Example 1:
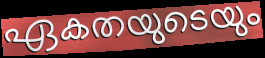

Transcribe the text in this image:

ഏകതയുടെയും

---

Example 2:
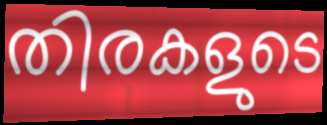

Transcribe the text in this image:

തിരകളുടെ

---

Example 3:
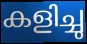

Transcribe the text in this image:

കളിച്ചു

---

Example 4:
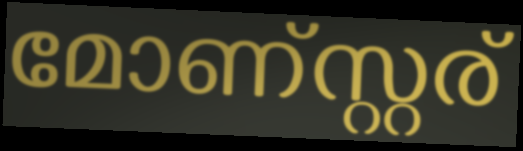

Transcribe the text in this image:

മോണ്സ്റ്റര്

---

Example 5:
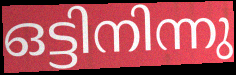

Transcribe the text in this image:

ഒട്ടിനിന്നു